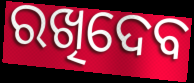
ରଖିଦେବ